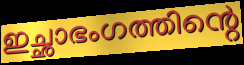
ഇച്ഛാഭംഗത്തിന്റെ